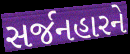
સર્જનહારને